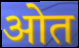
ओत